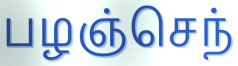
பழஞ்செந்